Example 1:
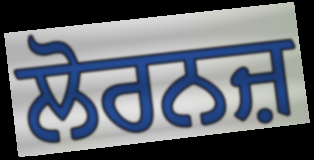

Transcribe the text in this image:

ਲੋਰਨਜ਼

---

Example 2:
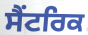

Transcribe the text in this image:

ਸੈਂਟਰਿਕ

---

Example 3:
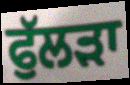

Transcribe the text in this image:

ਫੁੱਲੜਾ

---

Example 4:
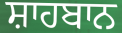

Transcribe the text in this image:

ਸ਼ਾਹਬਾਨ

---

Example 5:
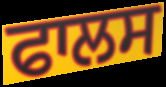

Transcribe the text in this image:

ਫਾਲਸ